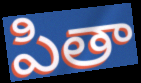
పితా